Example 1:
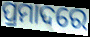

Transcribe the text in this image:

ପ୍ରମାଦରେ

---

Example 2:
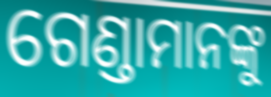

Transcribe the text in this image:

ଗେଣ୍ଡାମାନଙ୍କୁ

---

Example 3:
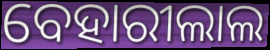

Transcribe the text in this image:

ବେହାରୀଲାଲ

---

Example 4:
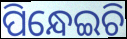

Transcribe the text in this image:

ପିନ୍ଧେଇଚି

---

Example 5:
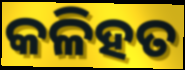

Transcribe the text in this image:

କଳିହତ